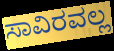
ಸಾವಿರವಲ್ಲ